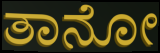
ತಾನೋ